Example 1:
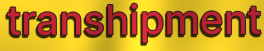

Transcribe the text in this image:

transhipment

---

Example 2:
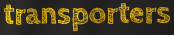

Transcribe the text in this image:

transporters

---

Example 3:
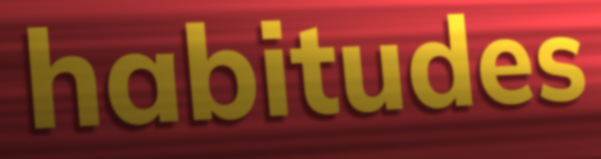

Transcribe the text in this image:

habitudes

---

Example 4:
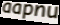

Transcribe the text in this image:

aapnu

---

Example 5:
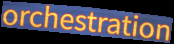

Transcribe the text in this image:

orchestration